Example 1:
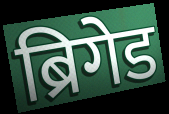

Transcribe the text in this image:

ब्रिगेड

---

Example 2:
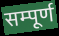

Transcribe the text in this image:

सम्पूर्ण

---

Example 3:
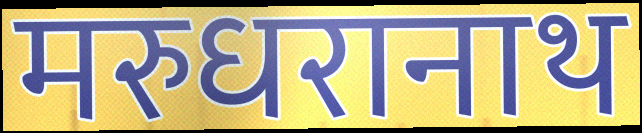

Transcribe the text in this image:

मरुधरानाथ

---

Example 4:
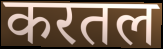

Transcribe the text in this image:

करतल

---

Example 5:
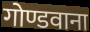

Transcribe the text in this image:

गोण्डवाना